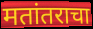
मतांतराचा